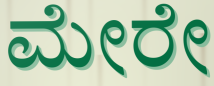
ಮೇರೇ